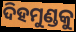
ଦିହମୁଣ୍ଡକୁ